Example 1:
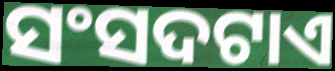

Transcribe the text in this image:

ସଂସଦଟାଏ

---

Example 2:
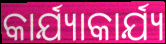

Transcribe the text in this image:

କାର୍ଯ୍ୟାକାର୍ଯ୍ୟ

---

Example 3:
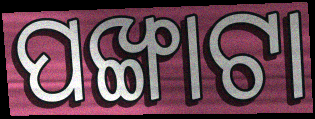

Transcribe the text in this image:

ପଙ୍ଖାଟା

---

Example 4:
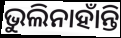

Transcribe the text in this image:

ଭୁଲିନାହାଁନ୍ତି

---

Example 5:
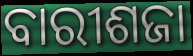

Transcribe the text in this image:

ବାରୀଶଜା